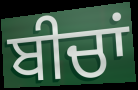
ਬੀਚਾਂ